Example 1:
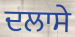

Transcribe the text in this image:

ਦਲਾਸੇ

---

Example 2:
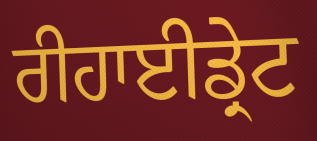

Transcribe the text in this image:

ਰੀਹਾਈਡ੍ਰੇਟ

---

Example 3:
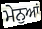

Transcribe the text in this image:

ਮੇਨੁਆਂ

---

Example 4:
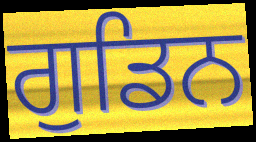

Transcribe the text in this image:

ਗੁਡਿਨ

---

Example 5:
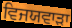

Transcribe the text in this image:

ਵਿਜਯਵਾੜਾ